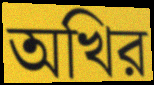
অখির